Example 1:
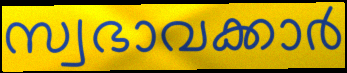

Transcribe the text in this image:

സ്വഭാവക്കാർ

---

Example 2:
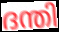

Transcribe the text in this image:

ദന്തി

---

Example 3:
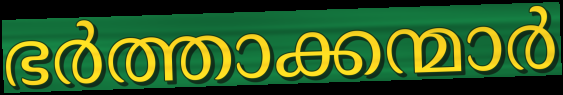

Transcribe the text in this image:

ഭർത്താക്കന്മാർ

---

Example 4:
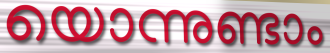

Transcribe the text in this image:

യൊന്നുണ്ടാം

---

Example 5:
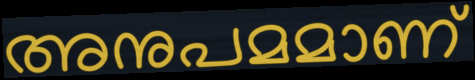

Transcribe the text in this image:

അനുപമമാണ്